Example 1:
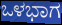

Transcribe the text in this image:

ಒಳಭಾಗ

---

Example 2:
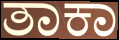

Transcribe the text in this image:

ತಾಕಾ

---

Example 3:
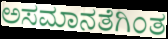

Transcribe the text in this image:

ಅಸಮಾನತೆಗಿಂತ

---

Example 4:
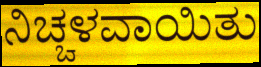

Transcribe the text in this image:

ನಿಚ್ಚಳವಾಯಿತು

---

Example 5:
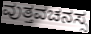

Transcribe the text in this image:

ವುತ್ತವಚನಸ್ಸ